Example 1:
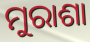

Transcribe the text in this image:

ମୁରାଶା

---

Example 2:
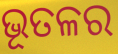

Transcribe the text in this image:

ଭୂତଳର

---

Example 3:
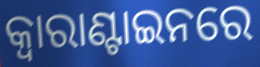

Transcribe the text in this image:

କ୍ବାରାଣ୍ଟାଇନରେ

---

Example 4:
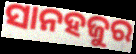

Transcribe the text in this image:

ସାନହଜୁର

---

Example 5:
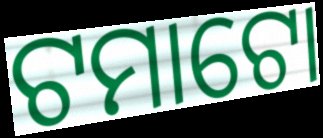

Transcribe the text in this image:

ଟମାଟୋ